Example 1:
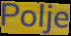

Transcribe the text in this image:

Polje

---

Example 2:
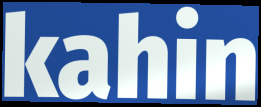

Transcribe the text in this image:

kahin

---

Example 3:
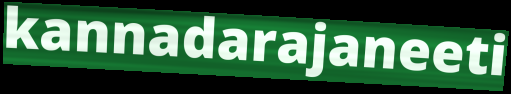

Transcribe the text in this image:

kannadarajaneeti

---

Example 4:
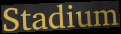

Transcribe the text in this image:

Stadium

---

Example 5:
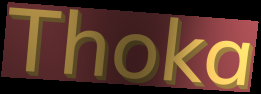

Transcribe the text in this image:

Thoka